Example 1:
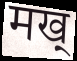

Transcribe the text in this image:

मख्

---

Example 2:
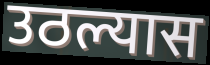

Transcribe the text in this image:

उठल्यास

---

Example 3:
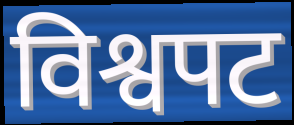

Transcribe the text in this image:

विश्वपट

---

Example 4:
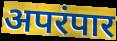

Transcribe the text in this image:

अपरंपार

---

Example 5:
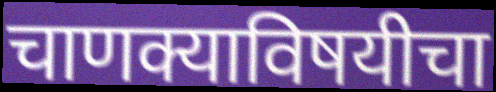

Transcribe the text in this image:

चाणक्याविषयीचा